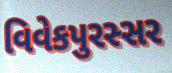
વિવેકપુરસ્સર